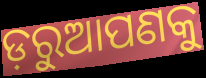
ଡ଼ରୁଆପଣକୁ